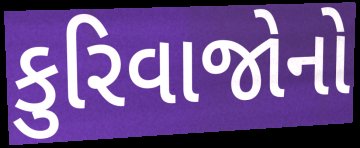
કુરિવાજોનો